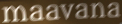
maavana